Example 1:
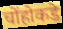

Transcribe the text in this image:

चोंहोकडे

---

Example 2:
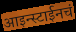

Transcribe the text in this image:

आइन्स्टाईनचं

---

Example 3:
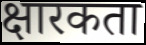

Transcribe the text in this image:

क्षारकता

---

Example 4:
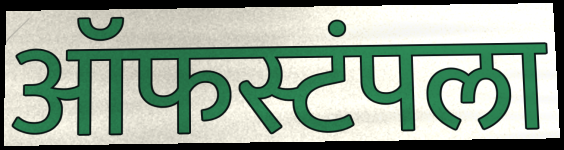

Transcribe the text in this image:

ऑफस्टंपला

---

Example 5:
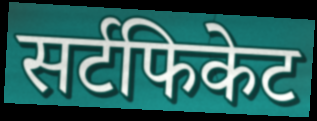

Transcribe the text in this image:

सर्टफिकेट